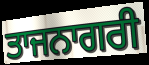
ਤਾਜਨਾਗਰੀ